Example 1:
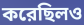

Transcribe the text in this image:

করেছিলও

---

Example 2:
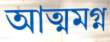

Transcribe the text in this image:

আত্মমগ্ন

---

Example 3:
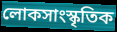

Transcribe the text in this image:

লোকসাংস্কৃতিক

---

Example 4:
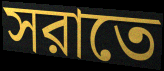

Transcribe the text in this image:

সরাতে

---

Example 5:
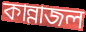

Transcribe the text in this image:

কান্নাজল